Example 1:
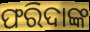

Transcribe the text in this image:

ଫରିଦାଙ୍କ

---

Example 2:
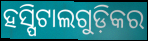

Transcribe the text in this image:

ହସ୍ପିଟାଲଗୁଡ଼ିକର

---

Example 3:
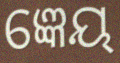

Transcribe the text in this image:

ଜ୍ଞେୟ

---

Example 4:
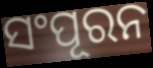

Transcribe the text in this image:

ସଂପୂରନ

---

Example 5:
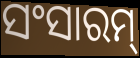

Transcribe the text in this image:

ସଂସାରମ୍